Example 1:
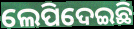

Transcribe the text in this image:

ଲେପିଦେଇଛି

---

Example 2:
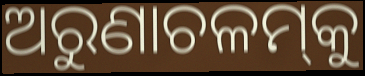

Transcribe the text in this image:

ଅରୁଣାଚଳମ୍‌କୁ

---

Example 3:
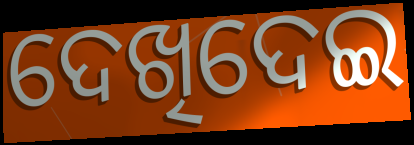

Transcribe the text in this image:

ଦେଖିଦେଇ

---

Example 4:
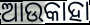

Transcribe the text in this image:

ଆଉକାହା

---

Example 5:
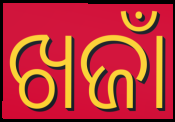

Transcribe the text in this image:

ଖଜାଁ